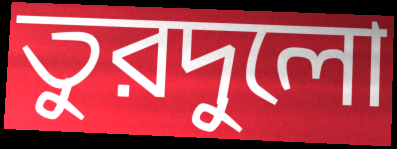
তুরদুলো